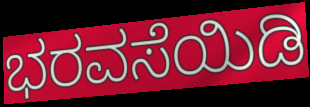
ಭರವಸೆಯಿಡಿ